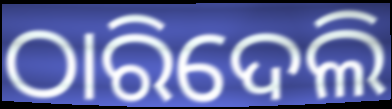
ଠାରିଦେଲି